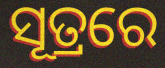
ସୂତ୍ରରେ